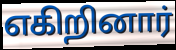
எகிறினார்